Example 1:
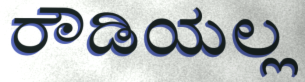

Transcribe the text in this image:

ರೌಡಿಯಲ್ಲ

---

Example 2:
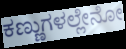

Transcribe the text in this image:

ಕಣ್ಣುಗಳಲ್ಲೇನೋ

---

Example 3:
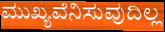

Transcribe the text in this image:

ಮುಖ್ಯವೆನಿಸುವುದಿಲ್ಲ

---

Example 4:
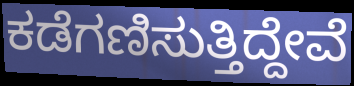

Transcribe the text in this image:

ಕಡೆಗಣಿಸುತ್ತಿದ್ದೇವೆ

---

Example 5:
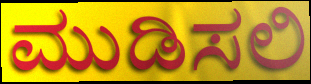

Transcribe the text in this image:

ಮುಡಿಸಲಿ